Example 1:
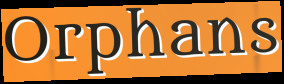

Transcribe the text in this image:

Orphans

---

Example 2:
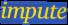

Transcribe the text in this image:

impute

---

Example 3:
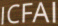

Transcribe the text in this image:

ICFAI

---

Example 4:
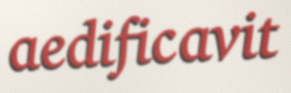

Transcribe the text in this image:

aedificavit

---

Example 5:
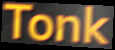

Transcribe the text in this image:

Tonk